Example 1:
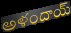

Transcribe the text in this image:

అళందాయ్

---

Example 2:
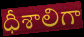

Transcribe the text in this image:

ధీశాలిగా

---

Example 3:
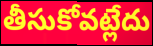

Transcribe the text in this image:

తీసుకోవట్లేదు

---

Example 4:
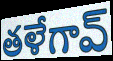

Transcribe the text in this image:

తళేగావ్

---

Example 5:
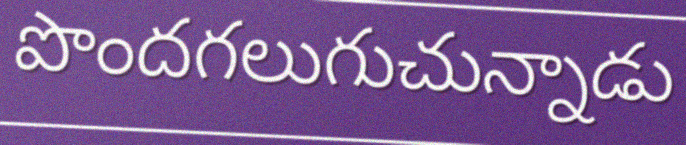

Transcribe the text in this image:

పొందగలుగుచున్నాడు